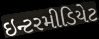
ઇન્ટરમીડિયેટ